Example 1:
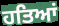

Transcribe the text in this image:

ਹਤਿਆਂ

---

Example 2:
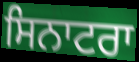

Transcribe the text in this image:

ਸਿਨਾਟਰਾ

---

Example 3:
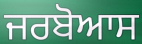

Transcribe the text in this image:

ਜਰਬੋਆਸ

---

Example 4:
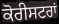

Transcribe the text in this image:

ਕੋਰੀਸਟਰਾਂ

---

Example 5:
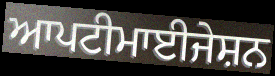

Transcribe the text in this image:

ਆਪਟੀਮਾਈਜੇਸ਼ਨ